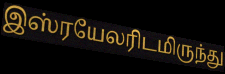
இஸ்ரயேலரிடமிருந்து